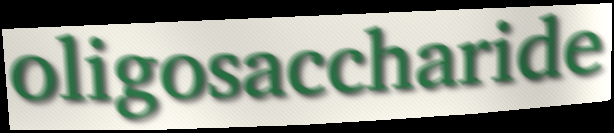
oligosaccharide